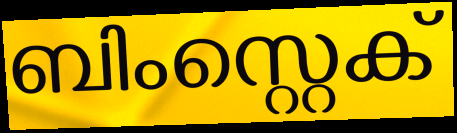
ബിംസ്റ്റെക്